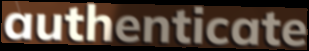
authenticate